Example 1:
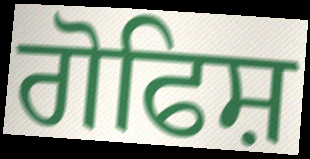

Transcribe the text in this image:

ਗੋਫਿਸ਼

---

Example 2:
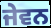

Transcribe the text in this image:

ਜੇਵਨ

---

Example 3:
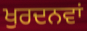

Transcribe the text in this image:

ਖੁਰਦਨਵਾਂ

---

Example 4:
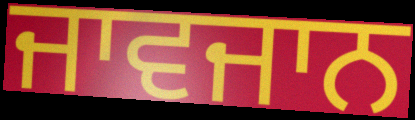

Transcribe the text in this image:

ਜਾਵਜਾਨ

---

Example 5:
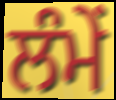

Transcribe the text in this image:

ਲੰਮੇਂ